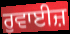
ਰੁਵਾਈਜ਼